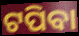
ଟପିବା